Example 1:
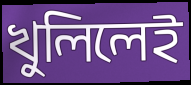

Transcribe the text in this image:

খুলিলেই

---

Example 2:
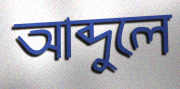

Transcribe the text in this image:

আব্দুলে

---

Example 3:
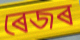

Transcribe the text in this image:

ৰেজৰ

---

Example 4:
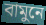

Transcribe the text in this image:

বামুনে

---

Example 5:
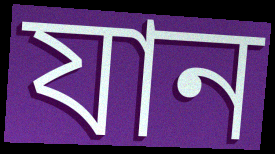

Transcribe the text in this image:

যান